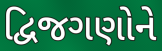
દ્વિજગણોને